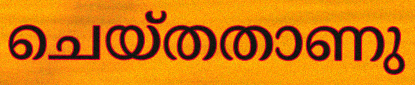
ചെയ്തതാണു